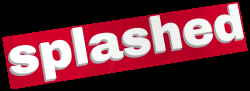
splashed